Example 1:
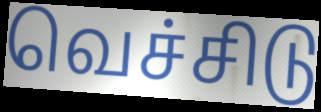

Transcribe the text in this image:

வெச்சிடு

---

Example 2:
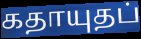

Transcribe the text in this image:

கதாயுதப்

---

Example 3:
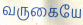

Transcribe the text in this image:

வருகையே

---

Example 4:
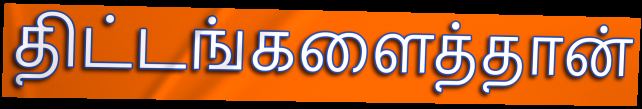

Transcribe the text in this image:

திட்டங்களைத்தான்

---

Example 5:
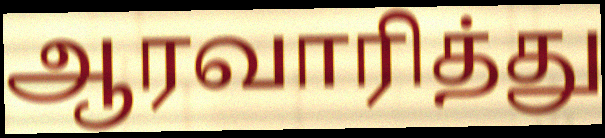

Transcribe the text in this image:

ஆரவாரித்து